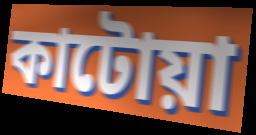
কাটোয়া